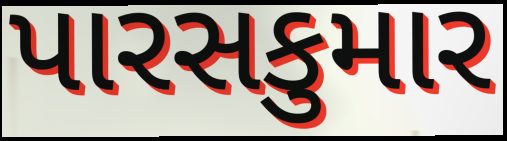
પારસકુમાર